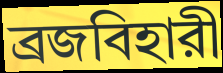
ব্রজবিহারী